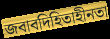
জবাবদিহিতাহীনতা